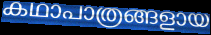
കഥാപാത്രങ്ങളായ